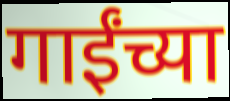
गाईंच्या